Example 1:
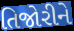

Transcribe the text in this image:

તિજોરીને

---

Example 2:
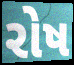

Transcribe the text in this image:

રોષ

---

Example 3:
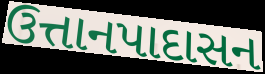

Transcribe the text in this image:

ઉત્તાનપાદાસન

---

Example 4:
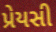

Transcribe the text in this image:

પ્રેયસી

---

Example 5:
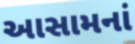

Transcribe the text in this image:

આસામનાં